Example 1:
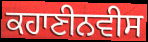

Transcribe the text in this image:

ਕਹਾਣੀਨਵੀਸ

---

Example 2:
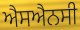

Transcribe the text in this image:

ਐਸਐਨਸੀ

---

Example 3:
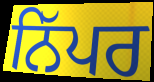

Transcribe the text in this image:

ਨਿੱਪਰ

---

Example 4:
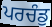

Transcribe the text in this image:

ਪਰਚੰਡੁ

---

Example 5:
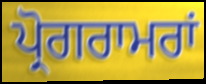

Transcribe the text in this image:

ਪ੍ਰੋਗਰਾਮਰਾਂ